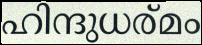
ഹിന്ദുധര്മം